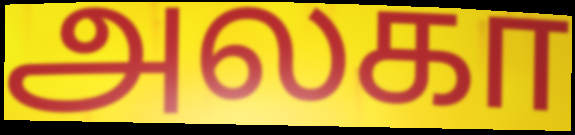
அலகா